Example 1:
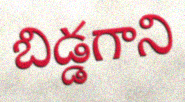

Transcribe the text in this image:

బిడ్డగాని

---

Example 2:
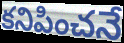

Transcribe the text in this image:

కనిపించనే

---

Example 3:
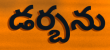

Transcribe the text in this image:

డర్బను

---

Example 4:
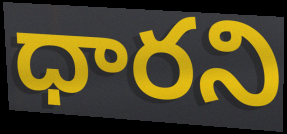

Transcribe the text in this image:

ధారని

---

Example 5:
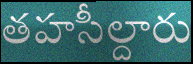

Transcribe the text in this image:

తహసీల్దారు